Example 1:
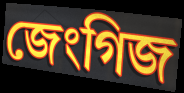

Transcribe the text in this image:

জেংগিজ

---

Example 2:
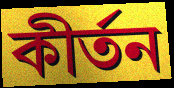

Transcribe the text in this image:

কীৰ্তন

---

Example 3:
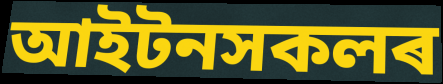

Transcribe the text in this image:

আইটনসকলৰ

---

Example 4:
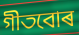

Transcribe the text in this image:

গীতবোৰ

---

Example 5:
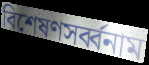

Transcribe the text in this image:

বিশেষণসৰ্ব্বনাম